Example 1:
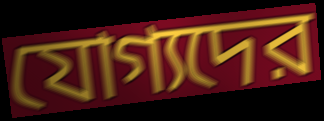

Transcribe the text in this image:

যোগ্যদের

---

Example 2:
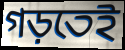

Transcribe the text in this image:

গড়তেই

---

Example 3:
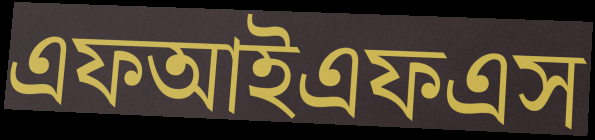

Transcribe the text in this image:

এফআইএফএস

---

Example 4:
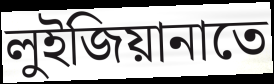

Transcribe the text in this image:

লুইজিয়ানাতে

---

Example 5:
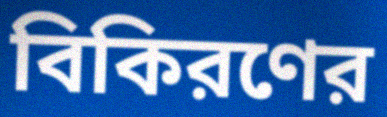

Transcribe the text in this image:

বিকিরণের